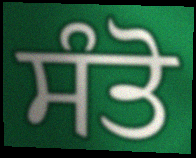
ਸੰਤੋ